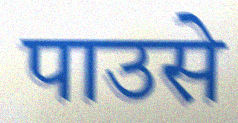
पाउसे